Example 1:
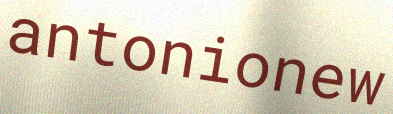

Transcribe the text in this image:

antonionew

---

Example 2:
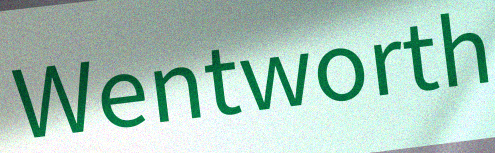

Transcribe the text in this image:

Wentworth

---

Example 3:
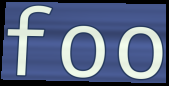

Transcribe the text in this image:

foo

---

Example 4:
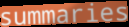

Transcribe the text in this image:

summaries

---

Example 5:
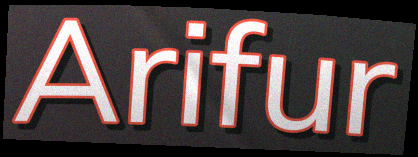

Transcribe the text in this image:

Arifur